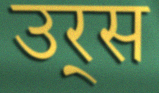
उर्स